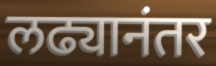
लढ्यानंतर